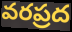
వరప్రద